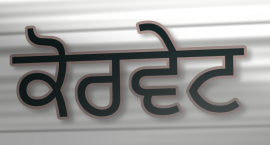
ਕੋਰਵੇਟ